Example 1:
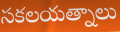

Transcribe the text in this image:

సకలయత్నాలు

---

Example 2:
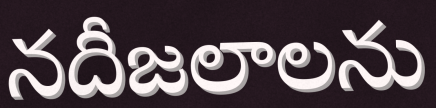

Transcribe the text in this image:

నదీజలాలను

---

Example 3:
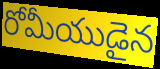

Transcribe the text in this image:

రోమీయుడైన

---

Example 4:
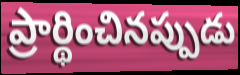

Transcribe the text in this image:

ప్రార్థించినప్పుడు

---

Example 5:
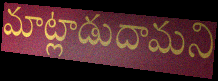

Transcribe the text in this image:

మాట్లాడుదామని